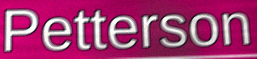
Petterson